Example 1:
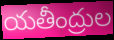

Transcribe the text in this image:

యతీంద్రుల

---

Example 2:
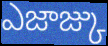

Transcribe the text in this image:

ఎజాజ్కు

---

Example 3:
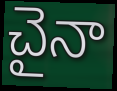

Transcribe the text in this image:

చైనా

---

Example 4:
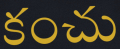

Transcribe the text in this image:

కంచు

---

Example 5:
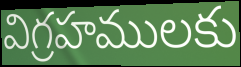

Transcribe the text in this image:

విగ్రహములకు